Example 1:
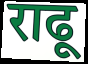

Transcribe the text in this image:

राढू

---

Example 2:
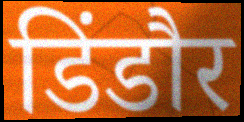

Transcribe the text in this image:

डिंडौर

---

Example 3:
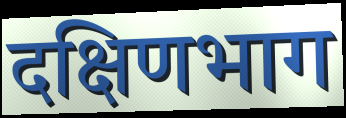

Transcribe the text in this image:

दक्षिणभाग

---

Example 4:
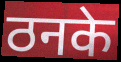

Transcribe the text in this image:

ठनके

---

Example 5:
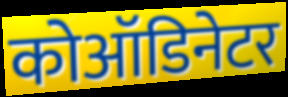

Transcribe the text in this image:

कोऑडिनेटर